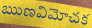
ఋణవిమోచక